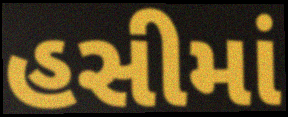
હસીમાં